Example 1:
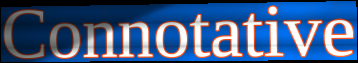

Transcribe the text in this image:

Connotative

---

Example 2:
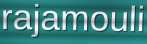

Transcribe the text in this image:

rajamouli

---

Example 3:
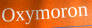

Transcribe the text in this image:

Oxymoron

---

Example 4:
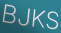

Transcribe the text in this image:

BJKS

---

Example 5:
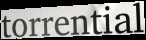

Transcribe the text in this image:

torrential